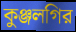
কুঞ্জলগির